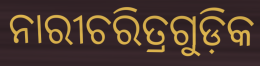
ନାରୀଚରିତ୍ରଗୁଡ଼ିକ